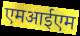
एमआईएम